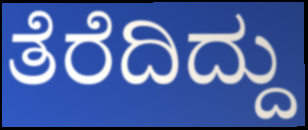
ತೆರೆದಿದ್ದು